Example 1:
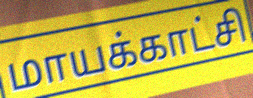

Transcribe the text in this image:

மாயக்காட்சி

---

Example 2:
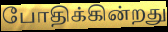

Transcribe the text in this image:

போதிக்கின்றது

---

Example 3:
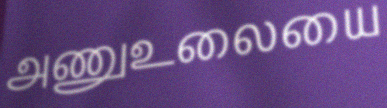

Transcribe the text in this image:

அணுஉலையை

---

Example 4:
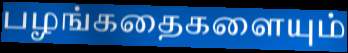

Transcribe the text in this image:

பழங்கதைகளையும்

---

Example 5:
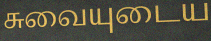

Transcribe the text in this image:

சுவையுடைய